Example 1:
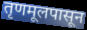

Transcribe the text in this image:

तृणमूलपासून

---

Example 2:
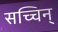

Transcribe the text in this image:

सच्चिन्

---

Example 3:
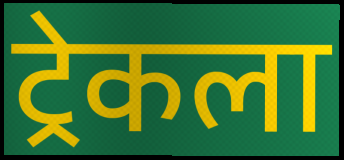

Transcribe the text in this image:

ट्रेकला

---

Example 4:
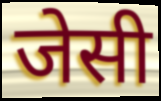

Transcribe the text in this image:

जेसी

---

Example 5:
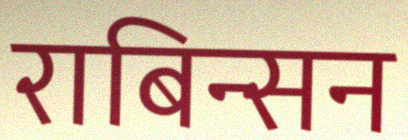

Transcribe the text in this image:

राबिन्सन